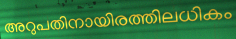
അറുപതിനായിരത്തിലധികം